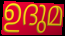
ഉദുമ